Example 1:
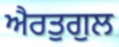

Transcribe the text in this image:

ਐਰਤੁਗੁਲ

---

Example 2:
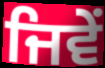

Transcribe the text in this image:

ਜਿਵੇੰ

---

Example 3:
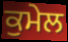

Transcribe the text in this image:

ਕੁਮੇਲ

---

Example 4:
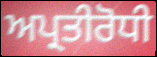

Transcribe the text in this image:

ਅਪ੍ਰਤੀਰੋਧੀ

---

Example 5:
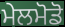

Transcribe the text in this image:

ਮੇਲਮੋਡੋ